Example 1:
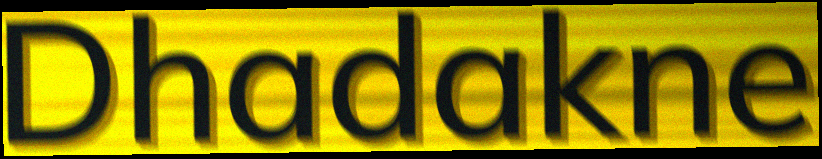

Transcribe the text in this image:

Dhadakne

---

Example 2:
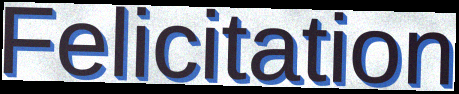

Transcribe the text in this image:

Felicitation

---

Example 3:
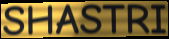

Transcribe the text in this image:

SHASTRI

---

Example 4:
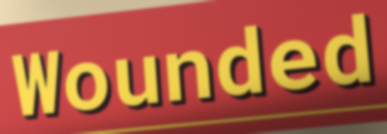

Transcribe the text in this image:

Wounded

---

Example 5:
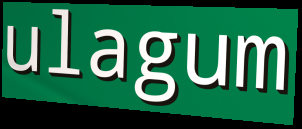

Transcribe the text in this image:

ulagum